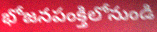
భోజనపంక్తిలోనుండి